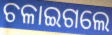
ଚଳାଇଗଲେ